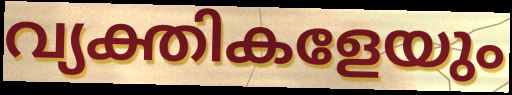
വ്യക്തികളേയും